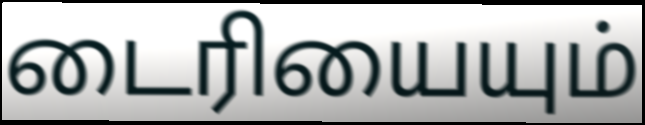
டைரியையும்